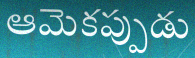
ఆమెకప్పుడు